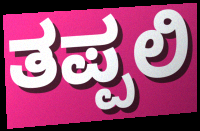
ತಪ್ಪಲಿ